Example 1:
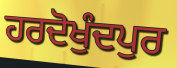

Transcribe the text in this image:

ਹਰਦੋਖੁੰਦਪੁਰ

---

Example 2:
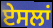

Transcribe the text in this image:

ਏਸਲਾਂ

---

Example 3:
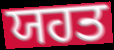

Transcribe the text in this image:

ਯਹਤ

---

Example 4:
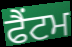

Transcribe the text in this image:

ਫੈਂਟਮ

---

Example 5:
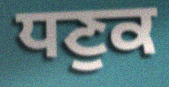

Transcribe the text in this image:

ਧਣੁਕ